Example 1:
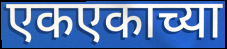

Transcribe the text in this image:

एकएकाच्या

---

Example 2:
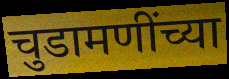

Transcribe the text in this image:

चुडामणींच्या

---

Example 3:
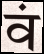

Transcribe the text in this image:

वं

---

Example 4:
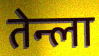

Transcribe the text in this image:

तेन्ला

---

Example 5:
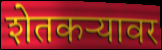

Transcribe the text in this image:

शेतकऱ्यावर